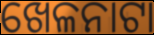
ଖେଳନାଟା